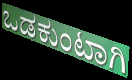
ಒಡಕುಂಟಾಗಿ